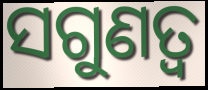
ସଗୁଣତ୍ଵ